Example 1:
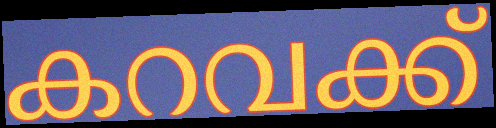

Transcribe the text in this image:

കറവക്ക്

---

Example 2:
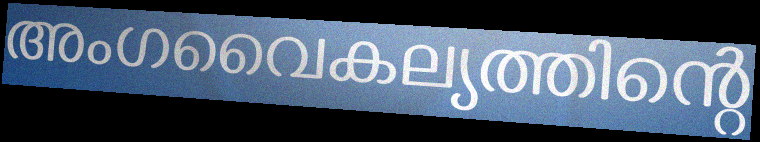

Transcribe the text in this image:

അംഗവൈകല്യത്തിന്റെ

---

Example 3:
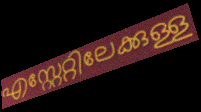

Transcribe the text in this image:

എസ്റ്റേറ്റിലേക്കുള്ള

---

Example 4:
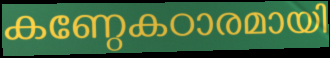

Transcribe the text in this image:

കണ്ഠേകഠാരമായി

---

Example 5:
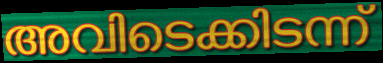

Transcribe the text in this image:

അവിടെക്കിടന്ന്